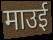
माउई